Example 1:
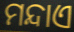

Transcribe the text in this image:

ମନ୍ଦାଏ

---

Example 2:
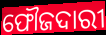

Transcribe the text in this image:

ଫୌଜଦାରୀ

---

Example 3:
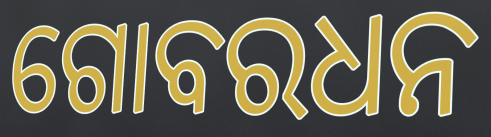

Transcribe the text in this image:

ଗୋବରଧନ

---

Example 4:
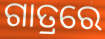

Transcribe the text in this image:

ଗାତ୍ରରେ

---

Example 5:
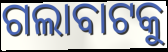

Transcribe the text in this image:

ଗଲାବାଟକୁ